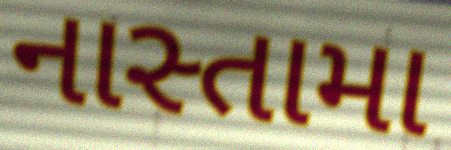
નાસ્તામા